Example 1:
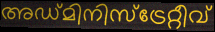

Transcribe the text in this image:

അഡ്മിനിസ്ട്രേറ്റീവ്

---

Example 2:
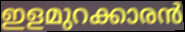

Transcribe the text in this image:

ഇളമുറക്കാരൻ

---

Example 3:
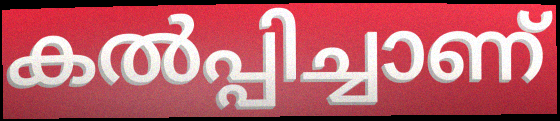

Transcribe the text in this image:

കൽപ്പിച്ചാണ്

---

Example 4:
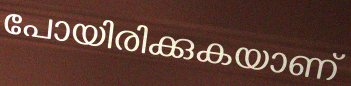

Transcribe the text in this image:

പോയിരിക്കുകയാണ്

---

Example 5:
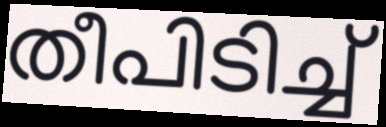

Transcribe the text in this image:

തീപിടിച്ച്